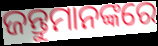
ଜନ୍ତୁମାନଙ୍କରେ